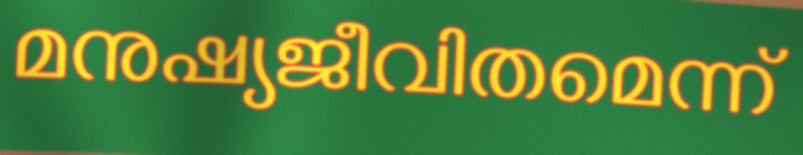
മനുഷ്യജീവിതമെന്ന്